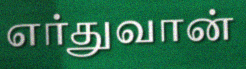
எர்துவான்